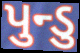
પુન્ડુ